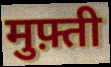
मुफ़्ती